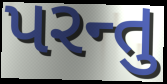
પરન્તુ